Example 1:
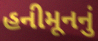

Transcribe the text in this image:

હનીમૂનનું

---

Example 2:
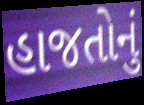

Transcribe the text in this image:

હાજતોનું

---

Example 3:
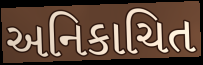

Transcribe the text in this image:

અનિકાચિત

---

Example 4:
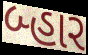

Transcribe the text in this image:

બ્હાર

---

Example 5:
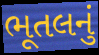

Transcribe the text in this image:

ભૂતલનું